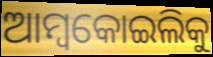
ଆମ୍ବକୋଇଲିକୁ